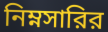
নিম্নসারির